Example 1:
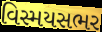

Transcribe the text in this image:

વિસ્મયસભર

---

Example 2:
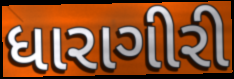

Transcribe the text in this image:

ધારાગીરી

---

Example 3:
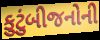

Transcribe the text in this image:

કુટુંબીજનોની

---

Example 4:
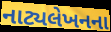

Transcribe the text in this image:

નાટ્યલેખનના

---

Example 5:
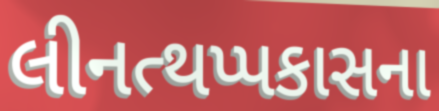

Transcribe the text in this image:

લીનત્થપ્પકાસના